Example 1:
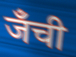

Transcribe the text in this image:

जँची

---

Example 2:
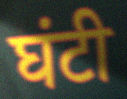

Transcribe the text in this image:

घंटी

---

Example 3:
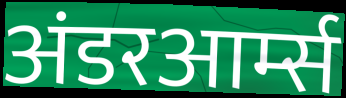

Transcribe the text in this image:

अंडरआर्म्‍स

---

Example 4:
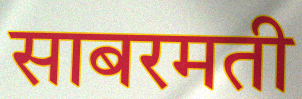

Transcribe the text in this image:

साबरमती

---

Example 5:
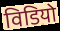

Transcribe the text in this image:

विडियो